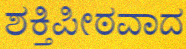
ಶಕ್ತಿಪೀಠವಾದ